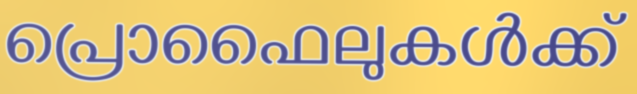
പ്രൊഫൈലുകൾക്ക്